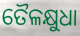
ତୈଳକ୍ଷୁଧା